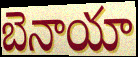
బెనాయా